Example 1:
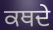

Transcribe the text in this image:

ਕਥਦੇ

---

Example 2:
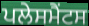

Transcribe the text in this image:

ਪਲੇਸਮੈਂਟਸ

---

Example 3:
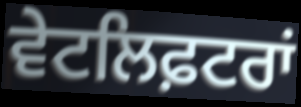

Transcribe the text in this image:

ਵੇਟਲਿਫ਼ਟਰਾਂ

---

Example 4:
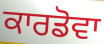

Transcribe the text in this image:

ਕਾਰਡੋਵਾ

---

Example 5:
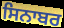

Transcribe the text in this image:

ਸਿਨਾਬਰ